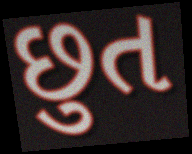
છુત